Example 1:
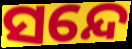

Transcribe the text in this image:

ସନ୍ଦେ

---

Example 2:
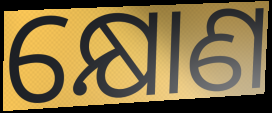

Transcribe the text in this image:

କ୍ଷୋଣ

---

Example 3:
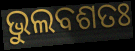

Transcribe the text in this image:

ଭୁଲବଶତଃ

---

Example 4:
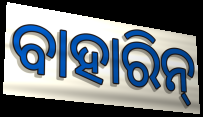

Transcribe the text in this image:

ବାହାରିନ୍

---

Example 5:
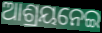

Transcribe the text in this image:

ଆଶ୍ରୟନେଇ